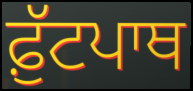
ਫ਼ੁੱਟਪਾਥ